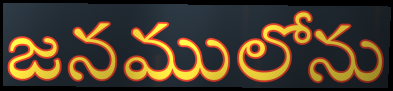
జనములోను